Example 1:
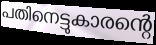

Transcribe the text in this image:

പതിനെട്ടുകാരന്റെ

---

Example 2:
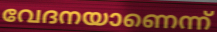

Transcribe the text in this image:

വേദനയാണെന്ന്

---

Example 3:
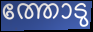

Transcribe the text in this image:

ത്തോടു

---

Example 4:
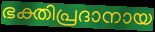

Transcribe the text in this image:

ഭക്തിപ്രദാനായ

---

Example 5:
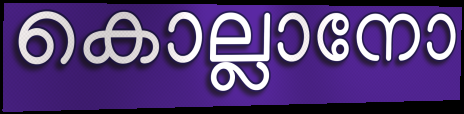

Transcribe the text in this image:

കൊല്ലാനോ